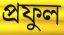
প্রফুল